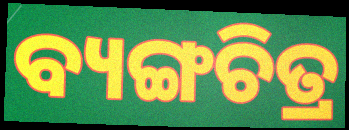
ବ୍ୟଙ୍ଗଚିତ୍ର